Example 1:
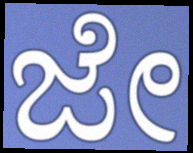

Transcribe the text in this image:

ಜೇ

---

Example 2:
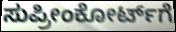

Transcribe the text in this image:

ಸುಪ್ರೀಂಕೋರ್ಟ್‌ಗೆ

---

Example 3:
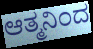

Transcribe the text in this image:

ಆತ್ಮನಿಂದ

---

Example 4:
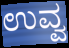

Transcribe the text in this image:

ಉವ್ವ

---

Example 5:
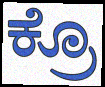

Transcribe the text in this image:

ಕ್ರೊ